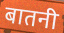
बातनी